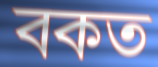
বকত